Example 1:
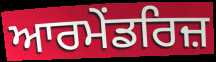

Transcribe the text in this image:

ਆਰਮੇਂਡਰਿਜ਼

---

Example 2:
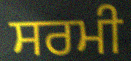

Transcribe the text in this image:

ਸਰਮੀ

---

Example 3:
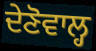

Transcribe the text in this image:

ਦੇਣੋਵਾਲ੍ਹ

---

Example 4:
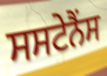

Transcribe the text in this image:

ਸਸਟੇਨੈਂਸ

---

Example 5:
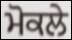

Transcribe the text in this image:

ਮੋਕਲੇ